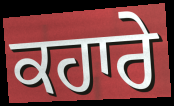
ਕਹਾਰੇ